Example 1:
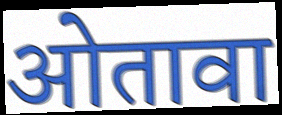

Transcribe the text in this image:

ओतावा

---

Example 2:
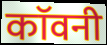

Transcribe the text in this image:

कॉवनी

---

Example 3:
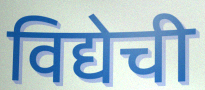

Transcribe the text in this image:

विद्येची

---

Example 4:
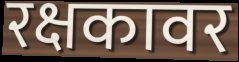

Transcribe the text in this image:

रक्षकावर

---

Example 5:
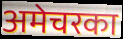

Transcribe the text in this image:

अमेचरका